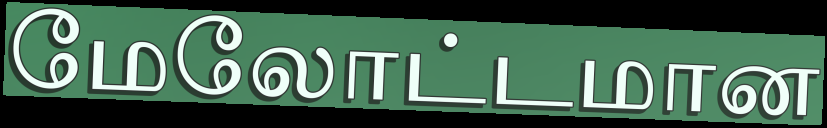
மேலோட்டமான